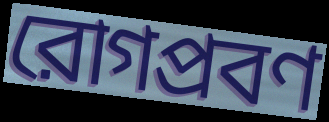
রোগপ্রবণ